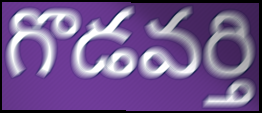
గొడవర్తి